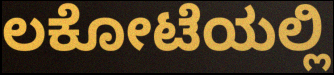
ಲಕೋಟೆಯಲ್ಲಿ